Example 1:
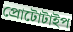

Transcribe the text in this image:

প্রোটোটাইপ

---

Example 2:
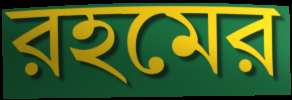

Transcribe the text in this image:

রহমের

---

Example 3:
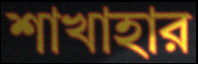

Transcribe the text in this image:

শাখাহার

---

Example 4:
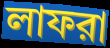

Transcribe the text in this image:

লাফরা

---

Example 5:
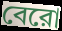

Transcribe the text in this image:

বেরো